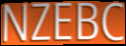
NZEBC